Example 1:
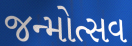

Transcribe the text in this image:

જન્મોત્સવ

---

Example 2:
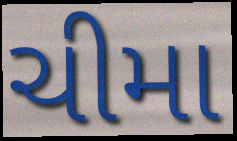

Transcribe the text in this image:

ચીમા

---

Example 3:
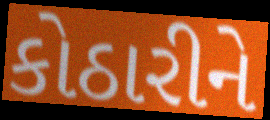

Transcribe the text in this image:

કોઠારીને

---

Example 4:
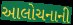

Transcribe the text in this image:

આલોચનાની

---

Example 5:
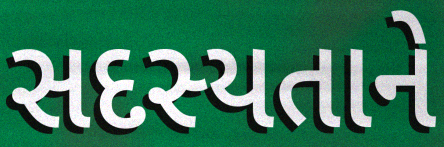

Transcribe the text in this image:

સદસ્યતાને